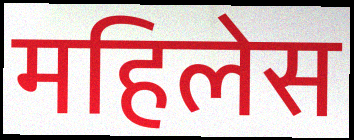
महिलेस